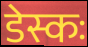
डेस्कः